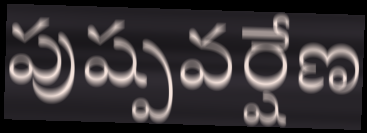
పుష్పవర్షేణ